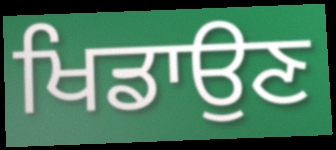
ਖਿਡਾਉਣ